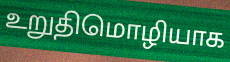
உறுதிமொழியாக